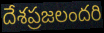
దేశప్రజలందరి